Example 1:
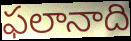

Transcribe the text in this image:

ఫలానాది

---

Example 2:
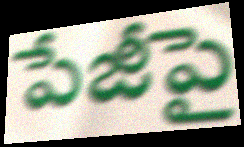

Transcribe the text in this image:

పేజీపై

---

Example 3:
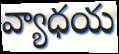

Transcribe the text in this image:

వ్యాధయ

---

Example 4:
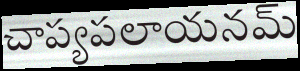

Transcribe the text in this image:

చాప్యపలాయనమ్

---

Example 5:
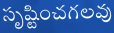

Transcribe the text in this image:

సృష్టించగలవు